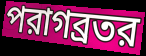
পরাগব্রতর